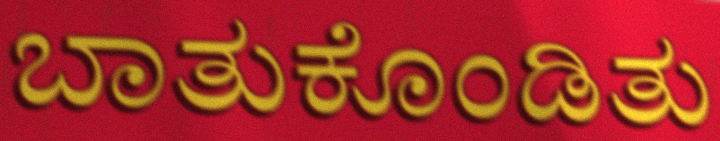
ಬಾತುಕೊಂಡಿತು